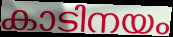
കാടിനയം